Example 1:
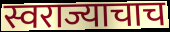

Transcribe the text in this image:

स्वराज्याचाच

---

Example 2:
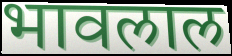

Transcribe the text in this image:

भावलाल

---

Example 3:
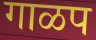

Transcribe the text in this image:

गाळप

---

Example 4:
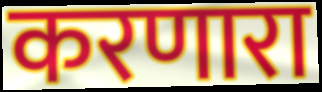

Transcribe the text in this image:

करणारा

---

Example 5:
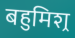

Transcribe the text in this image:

बहुमिश्र